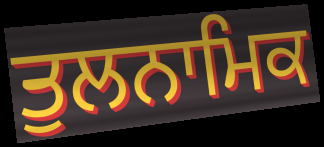
ਤੁਲਨਾਮਿਕ